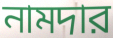
নামদার